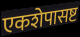
एकशेपासष्ट